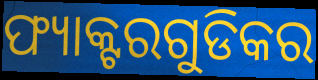
ଫ୍ୟାକ୍ଟରଗୁଡିକର